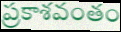
ప్రకాశవంతం